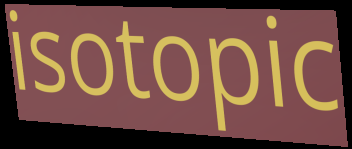
isotopic